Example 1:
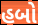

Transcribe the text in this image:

હબો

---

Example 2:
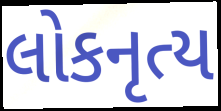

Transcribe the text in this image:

લોકનૃત્ય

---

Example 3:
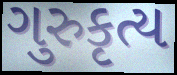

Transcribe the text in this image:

ગુરુકૃત્ય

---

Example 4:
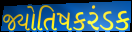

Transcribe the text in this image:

જ્યોતિષકરંડક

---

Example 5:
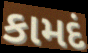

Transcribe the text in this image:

કામદં